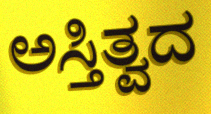
ಅಸ್ತಿತ್ವದ